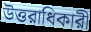
উত্তরাধিকারী